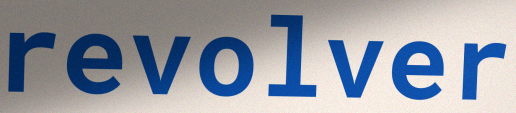
revolver